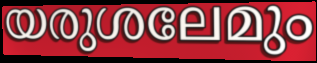
യരുശലേമും